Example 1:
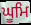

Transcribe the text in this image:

ਘੂਮਿ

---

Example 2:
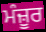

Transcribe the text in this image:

ਮੰਜ਼ੂਰ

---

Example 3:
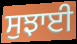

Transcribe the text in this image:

ਸੁਝਾਈ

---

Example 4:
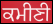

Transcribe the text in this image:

ਕਮੀਣੀ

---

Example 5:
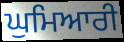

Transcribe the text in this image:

ਘੁਮਿਆਰੀ